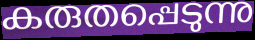
കരുതപ്പെടുന്നു